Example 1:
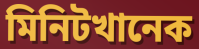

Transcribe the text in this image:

মিনিটখানেক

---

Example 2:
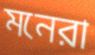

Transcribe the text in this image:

মনেরা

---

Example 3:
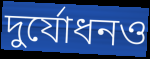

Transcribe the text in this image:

দুর্যোধনও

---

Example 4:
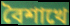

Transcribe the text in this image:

বৈশাখে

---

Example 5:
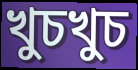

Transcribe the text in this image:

খুচখুচ